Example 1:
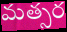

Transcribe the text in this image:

మత్సర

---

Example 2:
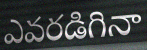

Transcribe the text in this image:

ఎవరడిగినా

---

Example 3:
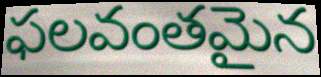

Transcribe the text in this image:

ఫలవంతమైన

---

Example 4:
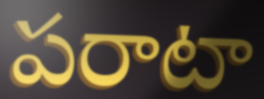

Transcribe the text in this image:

పరాటా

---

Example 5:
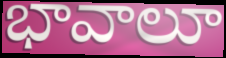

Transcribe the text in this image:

భావాలూ